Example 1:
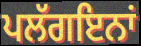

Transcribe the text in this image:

ਪਲੱਗਇਨਾਂ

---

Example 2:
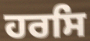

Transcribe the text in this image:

ਹਰਸਿ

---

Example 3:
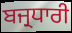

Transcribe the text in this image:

ਬਜ੍ਰਧਾਰੀ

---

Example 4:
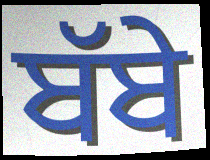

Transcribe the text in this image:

ਬੱਬੇ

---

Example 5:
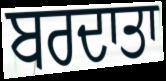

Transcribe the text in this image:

ਬਰਦਾਤਾ